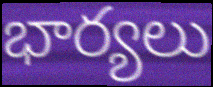
భార్యలు